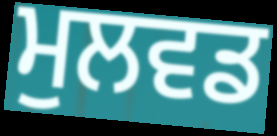
ਮੁਲਵਡ